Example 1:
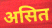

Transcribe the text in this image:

असित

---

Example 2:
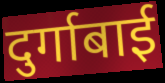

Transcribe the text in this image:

दुर्गाबाई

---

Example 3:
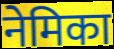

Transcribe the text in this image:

नेमिका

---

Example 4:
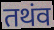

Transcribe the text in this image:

तथंव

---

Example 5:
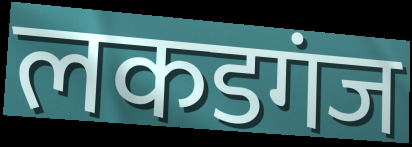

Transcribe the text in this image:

लकडगंज